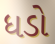
ધડો